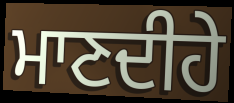
ਮਾਣਦੀਹੇ